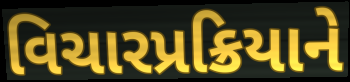
વિચારપ્રક્રિયાને